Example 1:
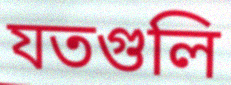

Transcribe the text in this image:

যতগুলি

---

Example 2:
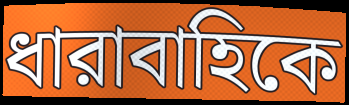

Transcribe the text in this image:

ধারাবাহিকে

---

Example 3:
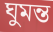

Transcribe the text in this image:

ঘুমন্ত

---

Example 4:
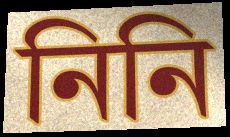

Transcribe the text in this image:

নিনি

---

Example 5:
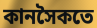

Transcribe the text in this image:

কানসৈকতে